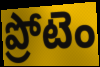
ప్రోటెం